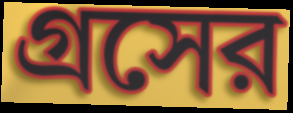
গ্রসের